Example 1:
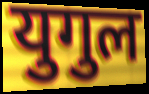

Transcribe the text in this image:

युगुल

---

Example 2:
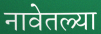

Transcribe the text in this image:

नावेतल्या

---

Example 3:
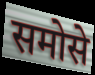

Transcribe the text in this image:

समोसे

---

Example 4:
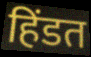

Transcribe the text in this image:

हिंडत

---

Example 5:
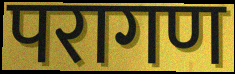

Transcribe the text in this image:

परागण